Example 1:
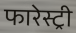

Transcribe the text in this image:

फारेस्ट्री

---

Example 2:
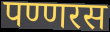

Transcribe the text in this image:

पण्णरस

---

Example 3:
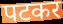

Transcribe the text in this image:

पटकर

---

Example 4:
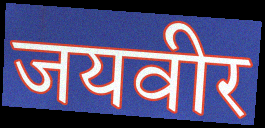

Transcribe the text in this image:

जयवीर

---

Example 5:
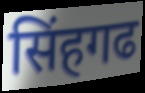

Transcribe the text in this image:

सिंहगढ